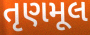
તૃણમૂલ